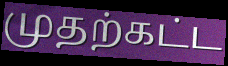
முதற்கட்ட